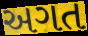
અગત